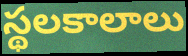
స్థలకాలాలు